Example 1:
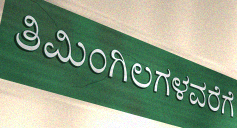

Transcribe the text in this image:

ತಿಮಿಂಗಿಲಗಳವರೆಗೆ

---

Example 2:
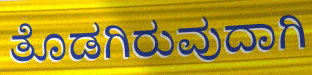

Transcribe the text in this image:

ತೊಡಗಿರುವುದಾಗಿ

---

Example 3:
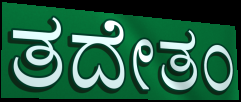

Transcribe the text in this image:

ತದೇತಂ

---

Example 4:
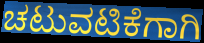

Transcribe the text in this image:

ಚಟುವಟಿಕೆಗಾಗಿ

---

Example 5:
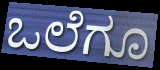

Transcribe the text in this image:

ಒಲೆಗೂ